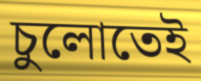
চুলোতেই